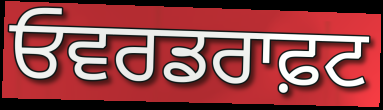
ਓਵਰਡਰਾਫ਼ਟ